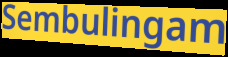
Sembulingam